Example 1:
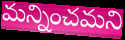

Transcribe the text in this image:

మన్నించమని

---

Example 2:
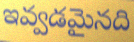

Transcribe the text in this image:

ఇవ్వడమైనది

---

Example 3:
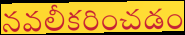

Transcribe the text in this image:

నవలీకరించడం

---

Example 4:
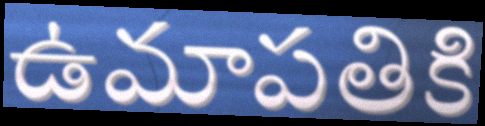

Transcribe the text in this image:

ఉమాపతికి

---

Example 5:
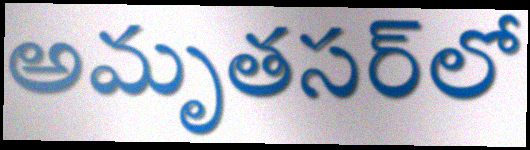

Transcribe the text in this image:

అమృతసర్‌లో